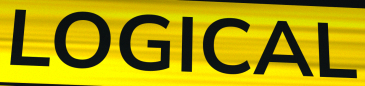
LOGICAL